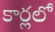
కార్లలో